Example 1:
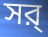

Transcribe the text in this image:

সর্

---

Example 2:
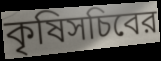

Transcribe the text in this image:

কৃষিসচিবের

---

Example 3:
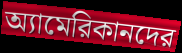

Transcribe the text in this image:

অ্যামেরিকানদের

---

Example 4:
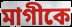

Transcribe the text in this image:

মাগীকে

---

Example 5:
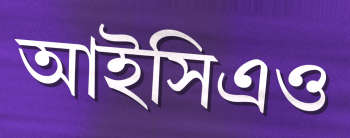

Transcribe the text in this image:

আইসিএও